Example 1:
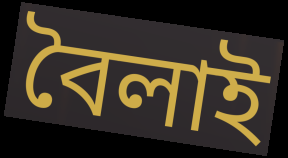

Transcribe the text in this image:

বৈলাই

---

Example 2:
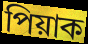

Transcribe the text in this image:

পিয়াক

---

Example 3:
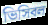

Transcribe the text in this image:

ভিসিবল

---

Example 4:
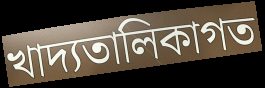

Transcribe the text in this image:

খাদ্যতালিকাগত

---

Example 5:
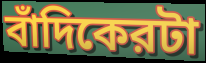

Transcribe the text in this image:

বাঁদিকেরটা